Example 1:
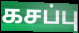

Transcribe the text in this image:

கசப்பு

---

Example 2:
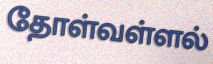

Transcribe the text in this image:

தோள்வள்ளல்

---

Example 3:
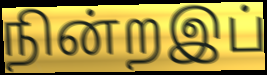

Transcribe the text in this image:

நின்றஇப்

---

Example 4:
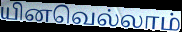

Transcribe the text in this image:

யினவெல்லாம்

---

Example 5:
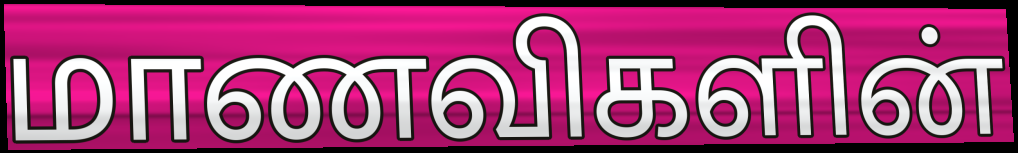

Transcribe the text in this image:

மாணவிகளின்